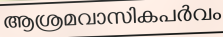
ആശ്രമവാസികപർവം